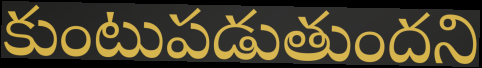
కుంటుపడుతుందని